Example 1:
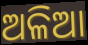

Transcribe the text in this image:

ଅଳିଆ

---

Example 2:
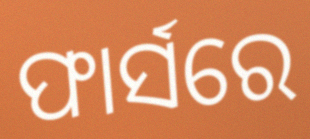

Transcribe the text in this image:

ଫାର୍ସରେ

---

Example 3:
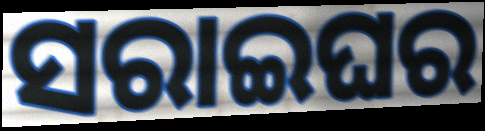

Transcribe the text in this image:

ସରାଇଘର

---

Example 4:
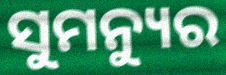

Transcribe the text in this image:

ସୁମନ୍ୟୁର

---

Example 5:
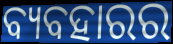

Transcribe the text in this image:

ବ୍ୟବହାରର